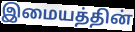
இமையத்தின்